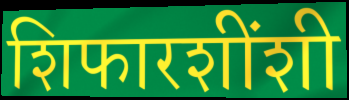
शिफारशींशी